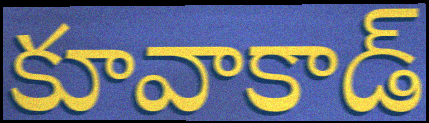
కూవాకాడ్